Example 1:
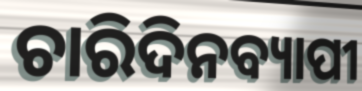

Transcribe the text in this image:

ଚାରିଦିନବ୍ୟାପୀ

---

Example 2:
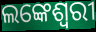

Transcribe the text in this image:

ଲଙ୍କେଶ୍ଵରୀ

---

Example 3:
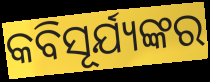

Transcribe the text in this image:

କବିସୂର୍ଯ୍ୟଙ୍କର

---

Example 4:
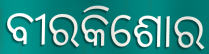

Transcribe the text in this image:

ବୀରକିଶୋର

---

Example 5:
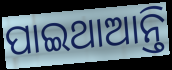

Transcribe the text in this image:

ପାଇଥାଆନ୍ତି